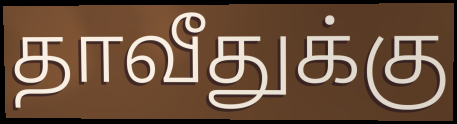
தாவீதுக்கு